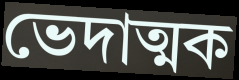
ভেদাত্মক